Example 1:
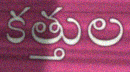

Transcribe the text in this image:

కత్తుల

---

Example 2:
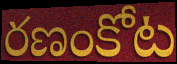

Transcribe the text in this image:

రణంకోట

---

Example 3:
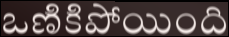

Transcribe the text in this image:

ఒణికిపోయింది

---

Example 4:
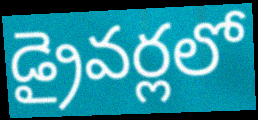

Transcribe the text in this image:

డ్రైవర్లలో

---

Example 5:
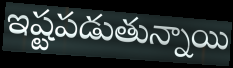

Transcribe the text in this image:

ఇష్టపడుతున్నాయి